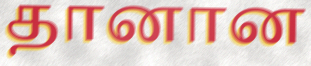
தானான